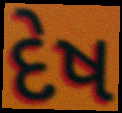
દેષ